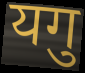
यगु